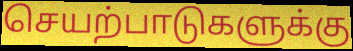
செயற்பாடுகளுக்கு